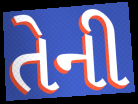
તેની